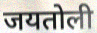
जयतोली